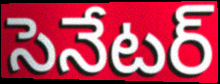
సెనేటర్